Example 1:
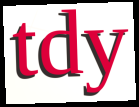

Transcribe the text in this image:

tdy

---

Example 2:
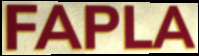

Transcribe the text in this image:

FAPLA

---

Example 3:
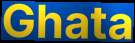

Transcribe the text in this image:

Ghata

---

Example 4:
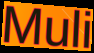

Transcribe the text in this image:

Muli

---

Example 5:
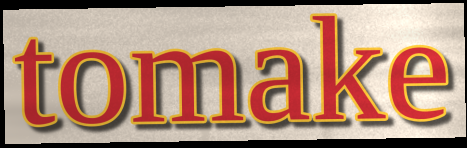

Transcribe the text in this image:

tomake